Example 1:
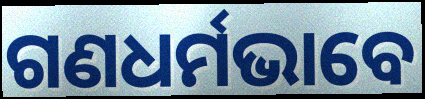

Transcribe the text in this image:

ଗଣଧର୍ମଭାବେ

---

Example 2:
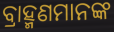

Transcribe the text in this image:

ବ୍ରାହ୍ମଣମାନଙ୍କ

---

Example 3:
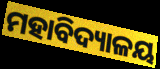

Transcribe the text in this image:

ମହାବିଦ୍ୟାଳୟ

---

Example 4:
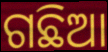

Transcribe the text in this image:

ଗଛିଆ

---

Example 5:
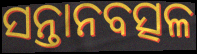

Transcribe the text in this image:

ସନ୍ତାନବତ୍ସଳ